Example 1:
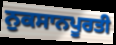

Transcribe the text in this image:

ਨੁਕਸਾਨਪੂਰਤੀ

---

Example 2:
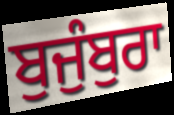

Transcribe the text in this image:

ਬੁਜੁੰਬੁਰਾ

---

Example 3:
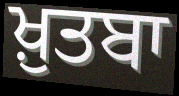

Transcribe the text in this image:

ਖ਼ੁਤਬਾ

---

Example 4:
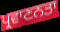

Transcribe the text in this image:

ਪ੍ਰਵਾਣਨਤਾ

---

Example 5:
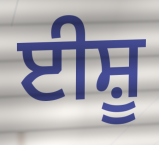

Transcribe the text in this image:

ਈਸ਼ੂ